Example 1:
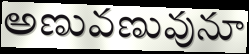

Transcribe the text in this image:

అణువణువునూ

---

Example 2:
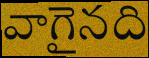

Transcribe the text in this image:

వాగైనది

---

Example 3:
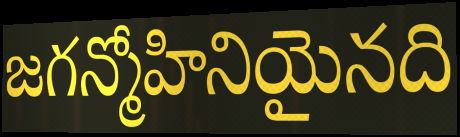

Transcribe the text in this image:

జగన్మోహినియైనది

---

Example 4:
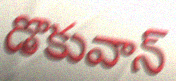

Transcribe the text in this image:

డొకువాన్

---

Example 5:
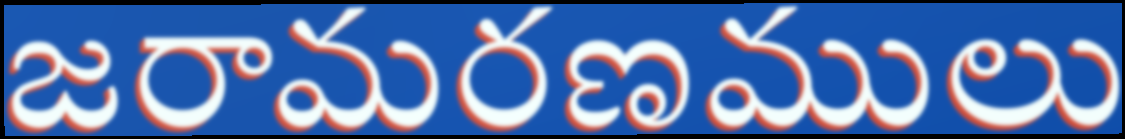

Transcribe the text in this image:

జరామరణములు